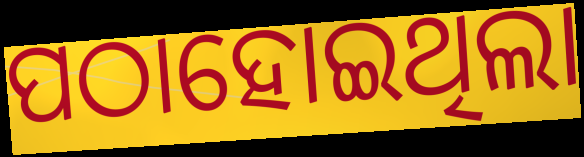
ପଠାହୋଇଥିଲା